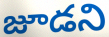
జూడని